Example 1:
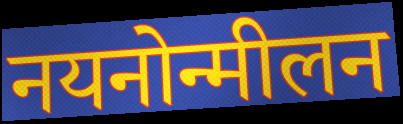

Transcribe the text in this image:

नयनोन्मीलन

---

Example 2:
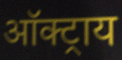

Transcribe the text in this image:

ऑक्ट्राय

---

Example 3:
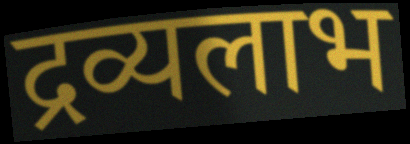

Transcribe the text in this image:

द्रव्यलाभ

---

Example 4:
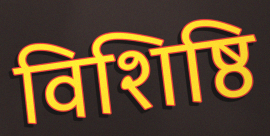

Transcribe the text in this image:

विशिष्ठि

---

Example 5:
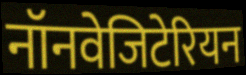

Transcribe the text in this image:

नॉनवेजिटेरियन